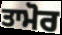
ਤਾਮੋਰ